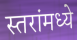
स्तरांमध्ये